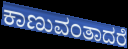
ಕಾಣುವಂತಾದರೆ